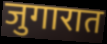
जुगारात